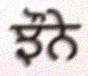
ਝੌਨੇ